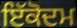
ਇੱਕੋਦਮ